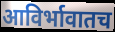
आविर्भावातच